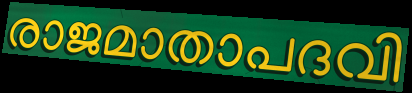
രാജമാതാപദവി